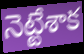
నెట్టేశాక